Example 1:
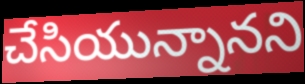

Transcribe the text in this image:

చేసియున్నానని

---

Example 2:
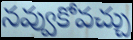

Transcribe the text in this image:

నవ్వుకోవచ్చు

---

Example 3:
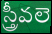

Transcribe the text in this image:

స్త్రీవలె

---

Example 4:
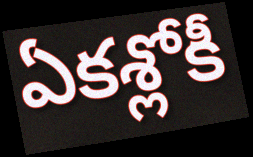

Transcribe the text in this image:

ఏకశ్లోకీ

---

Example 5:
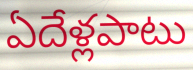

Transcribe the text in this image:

ఏదేళ్లపాటు